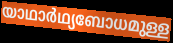
യാഥാർഥ്യബോധമുള്ള